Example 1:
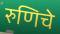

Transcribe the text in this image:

रुणिचे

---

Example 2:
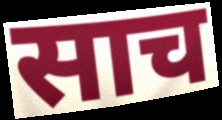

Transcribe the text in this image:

साच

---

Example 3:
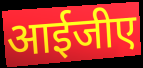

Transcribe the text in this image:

आईजीए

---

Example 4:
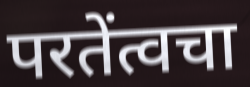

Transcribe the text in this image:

परतेंत्वचा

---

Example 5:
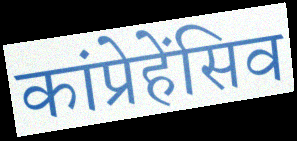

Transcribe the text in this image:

कांप्रेहेंसिव